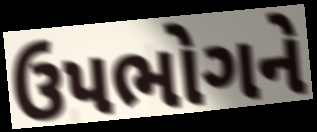
ઉપભોગને